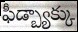
ఫీడ్బ్యాక్కు